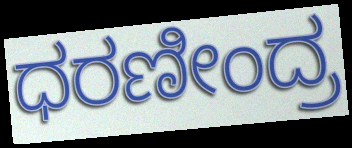
ಧರಣೀಂದ್ರ